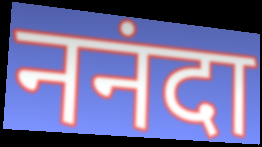
ननंदा